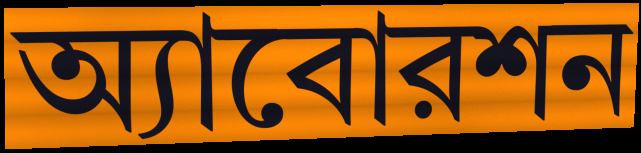
অ্যাবোরশন